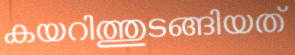
കയറിത്തുടങ്ങിയത്